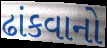
ઢાંકવાનો